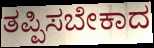
ತಪ್ಪಿಸಬೇಕಾದ